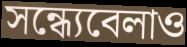
সন্ধ্যেবেলাও